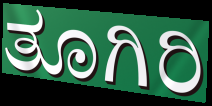
ತೂಗಿರಿ